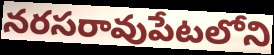
నరసరావుపేటలోని